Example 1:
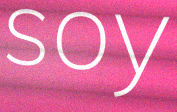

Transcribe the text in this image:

soy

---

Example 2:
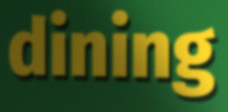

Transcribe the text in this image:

dining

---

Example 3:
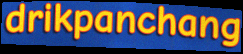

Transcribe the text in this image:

drikpanchang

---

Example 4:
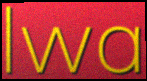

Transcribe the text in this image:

lwa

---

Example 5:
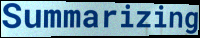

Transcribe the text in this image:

Summarizing